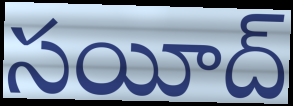
సయీద్